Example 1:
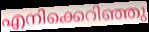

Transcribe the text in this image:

എനിക്കെറിഞ്ഞു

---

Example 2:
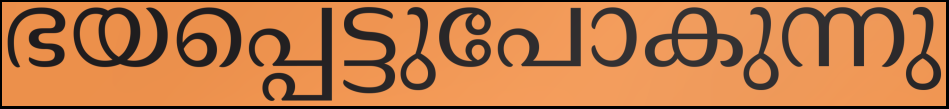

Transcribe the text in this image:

ഭയപ്പെട്ടുപോകുന്നു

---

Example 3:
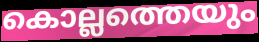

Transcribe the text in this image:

കൊല്ലത്തെയും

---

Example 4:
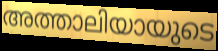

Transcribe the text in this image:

അത്താലിയായുടെ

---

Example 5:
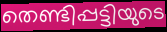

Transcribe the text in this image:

തെണ്ടിപ്പട്ടിയുടെ